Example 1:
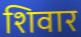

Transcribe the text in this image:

शिवार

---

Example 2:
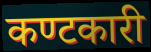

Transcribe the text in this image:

कण्टकारी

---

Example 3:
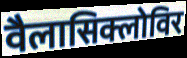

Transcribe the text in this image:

वैलासिक्लोविर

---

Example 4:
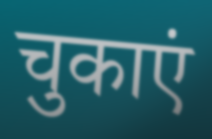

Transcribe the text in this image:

चुकाएं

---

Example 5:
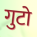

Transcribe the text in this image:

गुटो